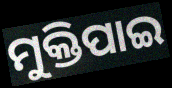
ମୁକ୍ତିପାଇ